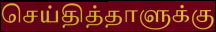
செய்தித்தாளுக்கு